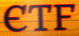
ETF